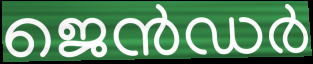
ജെൻഡർ